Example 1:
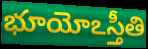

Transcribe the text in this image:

భూయోఽస్తీతి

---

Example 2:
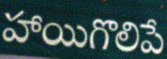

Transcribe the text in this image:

హాయిగొలిపే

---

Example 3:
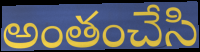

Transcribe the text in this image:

అంతంచేసి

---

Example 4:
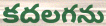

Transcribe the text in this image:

కదలగను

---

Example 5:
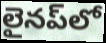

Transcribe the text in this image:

లైనప్‌లో